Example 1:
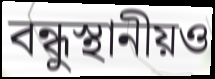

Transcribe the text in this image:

বন্ধুস্থানীয়ও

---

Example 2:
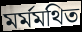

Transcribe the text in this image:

মর্মমথিত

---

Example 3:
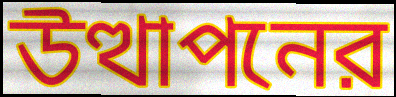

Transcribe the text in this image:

উত্থাপনের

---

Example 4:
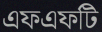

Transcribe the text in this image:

এফএফটি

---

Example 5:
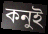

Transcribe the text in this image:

কনুই